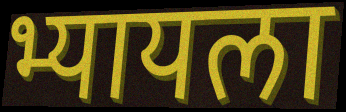
भ्यायला